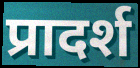
प्रादर्श